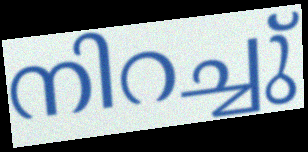
നിറച്ചു്